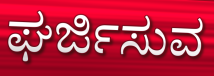
ಘರ್ಜಿಸುವ